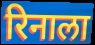
रिनाला